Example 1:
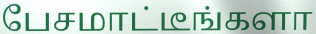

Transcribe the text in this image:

பேசமாட்டீங்களா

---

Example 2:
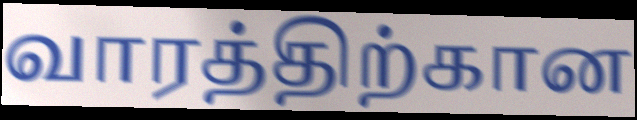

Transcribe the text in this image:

வாரத்திற்கான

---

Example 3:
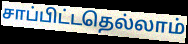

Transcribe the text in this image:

சாப்பிட்டதெல்லாம்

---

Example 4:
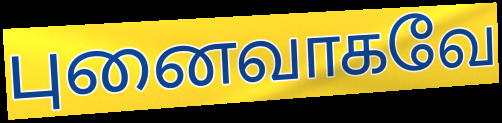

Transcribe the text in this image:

புனைவாகவே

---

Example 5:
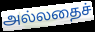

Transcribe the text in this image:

அல்லதைச்